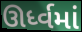
ઊર્ધ્વમાં